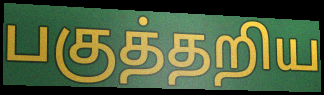
பகுத்தறிய